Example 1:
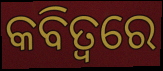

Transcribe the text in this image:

କବିତ୍ୱରେ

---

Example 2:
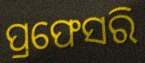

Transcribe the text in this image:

ପ୍ରଫେସରି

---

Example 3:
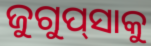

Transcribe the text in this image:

ଜୁଗୁପ୍‍ସାକୁ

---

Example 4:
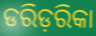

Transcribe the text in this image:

ଡରିଡ଼ରିକା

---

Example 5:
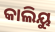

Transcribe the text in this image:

କାଲିୟୁ